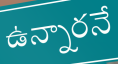
ఉన్నారనే